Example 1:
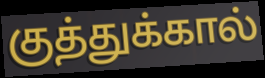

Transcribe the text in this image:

குத்துக்கால்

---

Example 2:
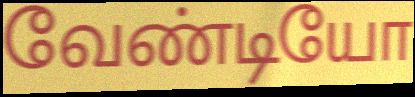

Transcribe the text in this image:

வேண்டியோ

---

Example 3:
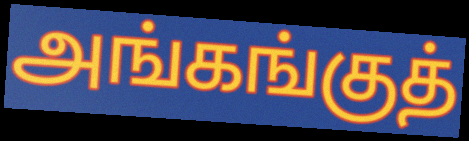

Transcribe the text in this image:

அங்கங்குத்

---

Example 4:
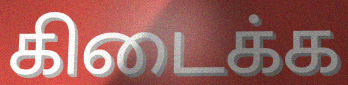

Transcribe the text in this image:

கிடைக்க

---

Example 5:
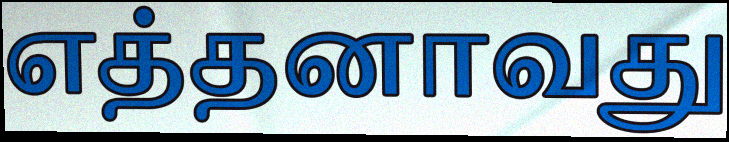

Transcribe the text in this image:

எத்தனாவது